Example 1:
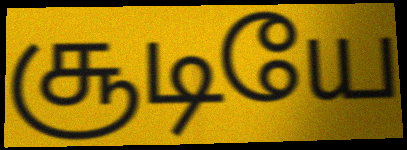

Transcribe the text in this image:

சூடியே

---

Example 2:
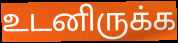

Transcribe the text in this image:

உடனிருக்க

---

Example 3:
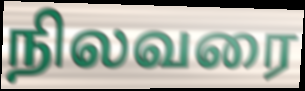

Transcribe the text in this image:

நிலவரை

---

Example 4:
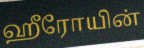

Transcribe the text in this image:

ஹீரோயின்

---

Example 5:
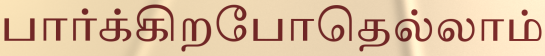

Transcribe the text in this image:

பார்க்கிறபோதெல்லாம்